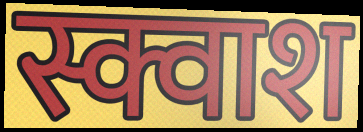
स्क्वाश